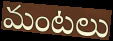
మంటలు